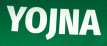
YOJNA